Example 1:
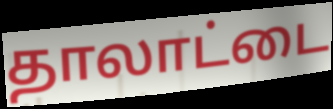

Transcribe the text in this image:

தாலாட்டை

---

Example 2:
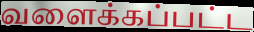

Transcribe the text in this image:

வளைக்கப்பட்ட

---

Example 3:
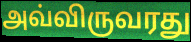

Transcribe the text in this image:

அவ்விருவரது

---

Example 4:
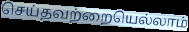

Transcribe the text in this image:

செய்தவற்றையெல்லாம்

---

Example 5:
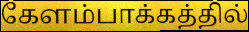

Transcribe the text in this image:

கேளம்பாக்கத்தில்